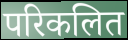
परिकलित